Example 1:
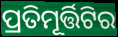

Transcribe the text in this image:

ପ୍ରତିମୂର୍ତ୍ତିଟିର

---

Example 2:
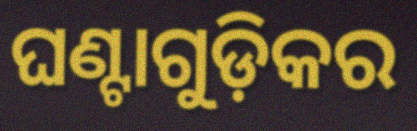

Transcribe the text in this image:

ଘଣ୍ଟାଗୁଡ଼ିକର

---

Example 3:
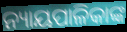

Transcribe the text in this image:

ନ୍ୟାୟପାଳିକାଙ୍କ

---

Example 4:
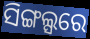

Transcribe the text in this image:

ସିଙ୍ଗଲ୍ସରେ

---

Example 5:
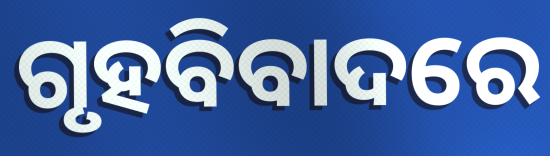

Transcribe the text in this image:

ଗୃହବିବାଦରେ